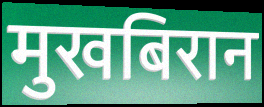
मुखबिरान